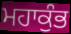
ਮਹਾਕੁੰਭ